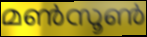
മൺസൂൺ